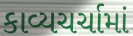
કાવ્યચર્ચામાં